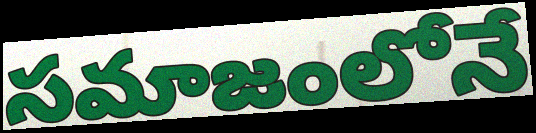
సమాజంలోనే